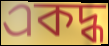
একদ্ধ